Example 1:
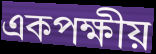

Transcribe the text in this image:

একপক্ষীয়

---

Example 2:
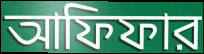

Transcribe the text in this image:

আফিফার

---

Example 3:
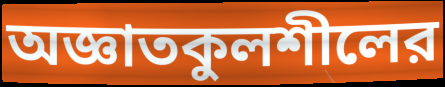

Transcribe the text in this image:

অজ্ঞাতকুলশীলের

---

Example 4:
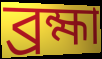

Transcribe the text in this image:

ব্রহ্মা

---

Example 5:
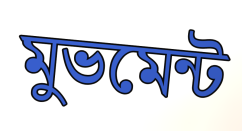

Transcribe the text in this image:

মুভমেন্ট